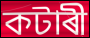
কটাৰী